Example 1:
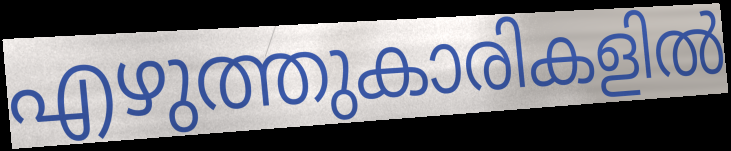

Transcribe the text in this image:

എഴുത്തുകാരികളിൽ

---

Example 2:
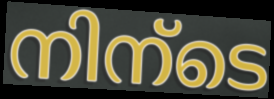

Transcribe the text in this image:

നിന്ടെ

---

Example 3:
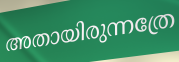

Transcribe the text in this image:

അതായിരുന്നത്രേ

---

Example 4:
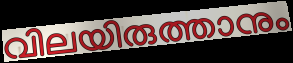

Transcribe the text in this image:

വിലയിരുത്താനും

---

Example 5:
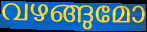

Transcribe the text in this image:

വഴങ്ങുമോ